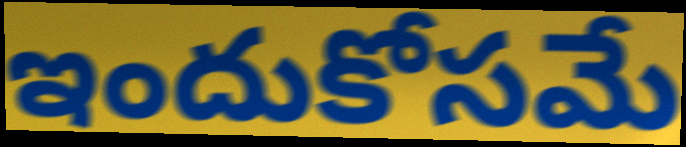
ఇందుకోసమే